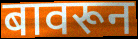
बावरून